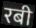
रबी